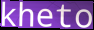
kheto